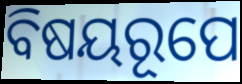
ବିଷୟରୂପେ